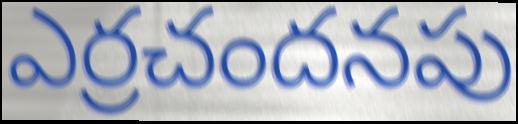
ఎర్రచందనపు